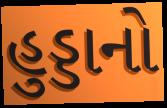
હુડ્ડાનો